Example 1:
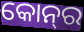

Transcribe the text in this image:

କୋନ୍‌ର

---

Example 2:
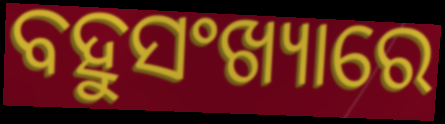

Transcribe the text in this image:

ବହୁସଂଖ୍ୟାରେ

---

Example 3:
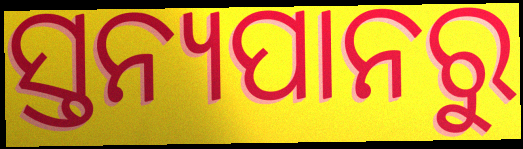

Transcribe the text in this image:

ସ୍ତନ୍ୟପାନରୁ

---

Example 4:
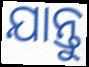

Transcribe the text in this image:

ଯାନ୍ତୁ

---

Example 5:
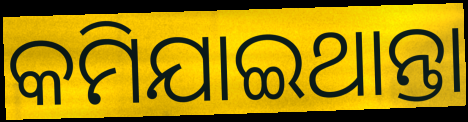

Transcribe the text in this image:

କମିଯାଇଥାନ୍ତା